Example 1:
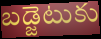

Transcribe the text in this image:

బడ్జెటుకు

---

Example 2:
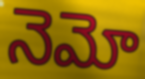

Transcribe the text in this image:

నెమో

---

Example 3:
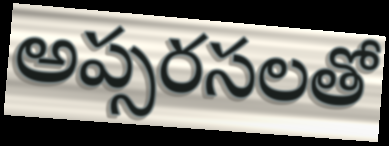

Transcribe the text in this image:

అప్సరసలతో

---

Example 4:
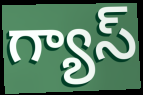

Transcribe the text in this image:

గ్యాస్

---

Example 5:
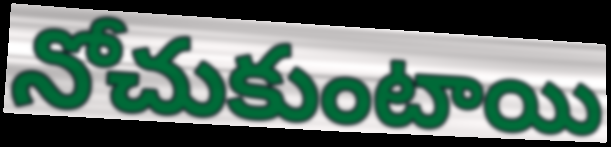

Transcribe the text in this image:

నోచుకుంటాయి